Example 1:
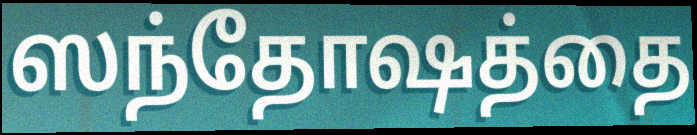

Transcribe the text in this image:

ஸந்தோஷத்தை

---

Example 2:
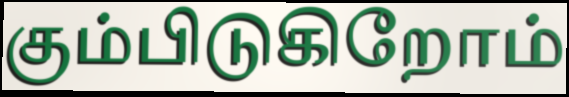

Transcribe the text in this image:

கும்பிடுகிறோம்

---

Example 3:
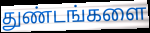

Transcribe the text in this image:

துண்டங்களை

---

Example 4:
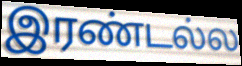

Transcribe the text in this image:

இரண்டல்ல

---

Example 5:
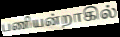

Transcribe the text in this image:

பணியன்றாகில்